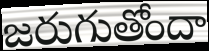
జరుగుతోందా